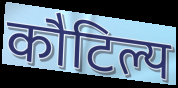
कौटिल्य